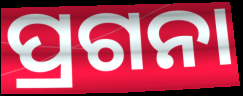
ପ୍ରଗନା